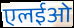
एलईओ